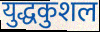
युद्धकुशल